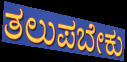
ತಲುಪಬೇಕು